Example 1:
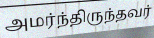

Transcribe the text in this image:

அமர்ந்திருந்தவர்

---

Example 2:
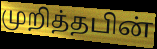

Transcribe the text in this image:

முறித்தபின்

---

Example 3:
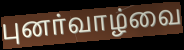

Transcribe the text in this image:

புனர்வாழ்வை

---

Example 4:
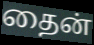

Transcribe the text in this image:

தைன்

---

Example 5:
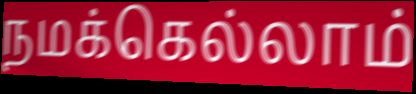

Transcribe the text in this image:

நமக்கெல்லாம்